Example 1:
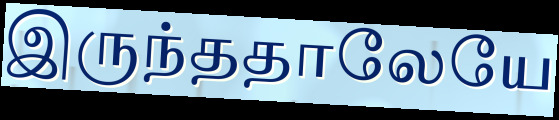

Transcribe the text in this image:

இருந்ததாலேயே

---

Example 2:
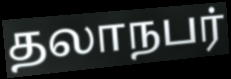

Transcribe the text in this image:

தலாநபர்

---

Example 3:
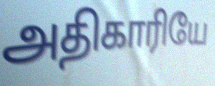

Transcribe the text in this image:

அதிகாரியே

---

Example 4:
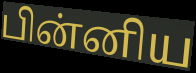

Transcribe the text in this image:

பின்னிய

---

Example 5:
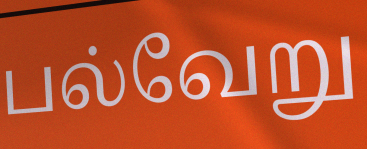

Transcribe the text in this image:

பல்வேறு